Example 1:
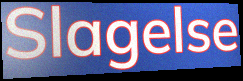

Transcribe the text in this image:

Slagelse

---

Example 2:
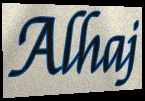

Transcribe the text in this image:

Alhaj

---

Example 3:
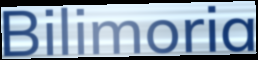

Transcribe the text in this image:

Bilimoria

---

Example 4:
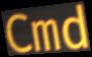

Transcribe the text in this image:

Cmd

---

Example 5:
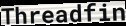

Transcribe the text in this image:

Threadfin